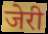
जेरी